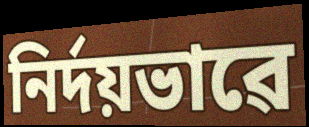
নিৰ্দয়ভাৱে